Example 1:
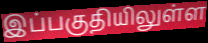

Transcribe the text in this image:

இப்பகுதியிலுள்ள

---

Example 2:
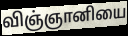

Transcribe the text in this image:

விஞ்ஞானியை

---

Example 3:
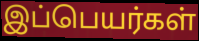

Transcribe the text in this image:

இப்பெயர்கள்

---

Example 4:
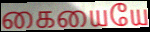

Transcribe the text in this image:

கையையே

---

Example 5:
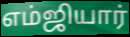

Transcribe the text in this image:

எம்ஜியார்